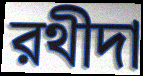
রথীদা